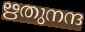
ഋതുനന്ദ